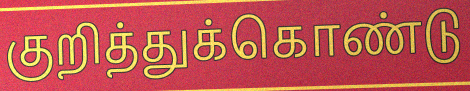
குறித்துக்கொண்டு